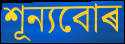
শূন্যবোৰ